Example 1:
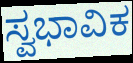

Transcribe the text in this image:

ಸ್ವಭಾವಿಕ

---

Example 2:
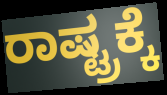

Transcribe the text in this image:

ರಾಷ್ಟ್ರಕ್ಕೆ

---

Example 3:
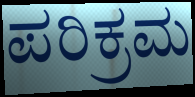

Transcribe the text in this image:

ಪರಿಕ್ರಮ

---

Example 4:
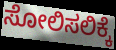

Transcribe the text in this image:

ಸೋಲಿಸಲಿಕ್ಕೆ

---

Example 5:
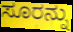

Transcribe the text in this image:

ಸೂರನ್ನು